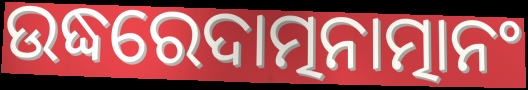
ଉଦ୍ଧରେଦାତ୍ମନାତ୍ମାନଂ